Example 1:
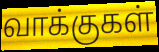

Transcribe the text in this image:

வாக்குகள்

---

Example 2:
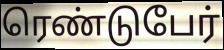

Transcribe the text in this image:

ரெண்டுபேர்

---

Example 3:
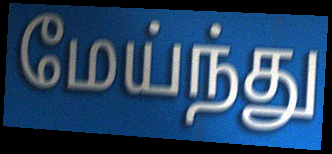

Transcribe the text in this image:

மேய்ந்து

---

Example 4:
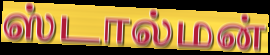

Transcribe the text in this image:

ஸ்டால்மன்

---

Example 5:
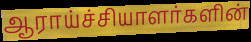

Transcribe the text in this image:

ஆராய்ச்சியாளர்களின்